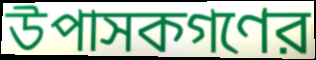
উপাসকগণের